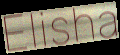
Elisha